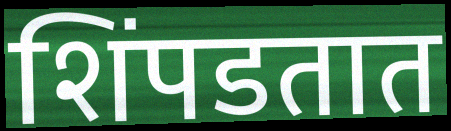
शिंपडतात